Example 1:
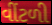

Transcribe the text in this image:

વીંટળી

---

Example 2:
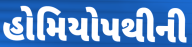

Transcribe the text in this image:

હોમિયોપથીની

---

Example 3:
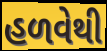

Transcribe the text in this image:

હળવેથી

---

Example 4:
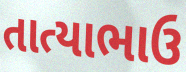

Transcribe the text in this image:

તાત્યાભાઉ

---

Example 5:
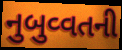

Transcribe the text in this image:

નુબુવ્વતની